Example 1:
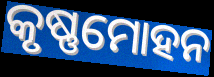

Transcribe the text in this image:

କୃଷ୍ଣମୋହନ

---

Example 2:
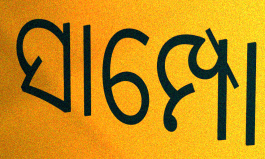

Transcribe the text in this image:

ସାମ୍ପୋ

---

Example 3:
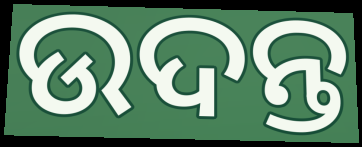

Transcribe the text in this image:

ଉଦନ୍ତ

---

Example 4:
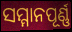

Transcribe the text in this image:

ସମ୍ମାନପୂର୍ଣ୍ଣ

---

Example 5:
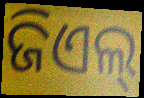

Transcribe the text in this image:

ଜିଏଲ୍